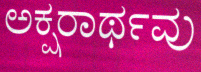
ಅಕ್ಷರಾರ್ಥವು